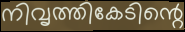
നിവൃത്തികേടിന്റെ